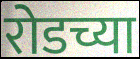
रोडच्या